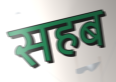
सहब